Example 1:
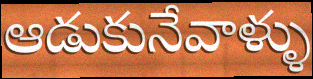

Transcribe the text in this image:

ఆడుకునేవాళ్ళు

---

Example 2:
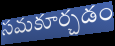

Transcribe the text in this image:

సమకూర్చడం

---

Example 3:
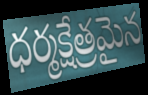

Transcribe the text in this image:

ధర్మక్షేత్రమైన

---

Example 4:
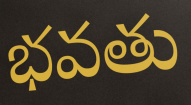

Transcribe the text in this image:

భవతు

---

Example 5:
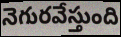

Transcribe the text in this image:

నెగురవేస్తుంది